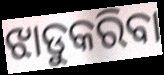
ଝାଡୁକରିବା